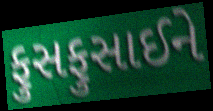
ફુસફુસાઈને